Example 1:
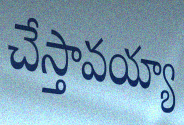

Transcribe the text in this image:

చేస్తావయ్యా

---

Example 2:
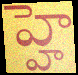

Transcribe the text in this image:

హ్హె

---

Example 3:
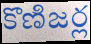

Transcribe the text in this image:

కొణిజర్ల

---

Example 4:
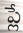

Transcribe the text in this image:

ప్లే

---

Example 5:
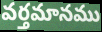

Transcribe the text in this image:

వర్తమానము